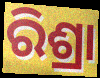
ରିଶ୍ରା